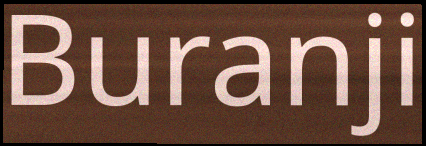
Buranji